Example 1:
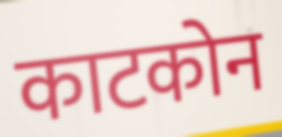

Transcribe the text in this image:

काटकोन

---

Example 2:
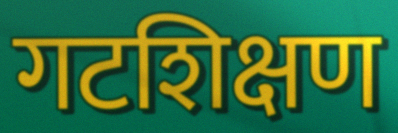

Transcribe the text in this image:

गटशिक्षण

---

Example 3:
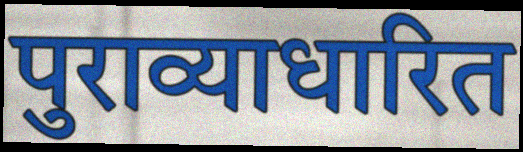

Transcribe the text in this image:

पुराव्याधारित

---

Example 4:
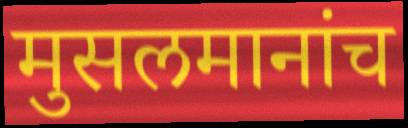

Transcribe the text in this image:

मुसलमानांच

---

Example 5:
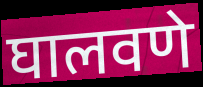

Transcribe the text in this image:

घालवणे